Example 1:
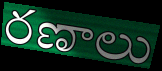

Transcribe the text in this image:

రణాలు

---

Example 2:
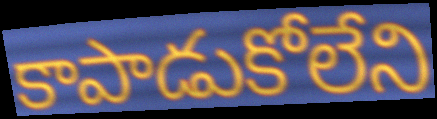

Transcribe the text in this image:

కాపాడుకోలేని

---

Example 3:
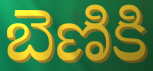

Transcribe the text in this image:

బెణికి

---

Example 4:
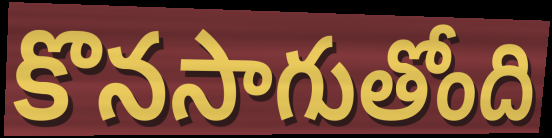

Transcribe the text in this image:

కొనసాగుతోంది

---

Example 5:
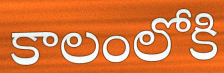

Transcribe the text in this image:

కాలంలోకి